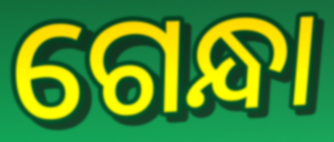
ଗେନ୍ଧା